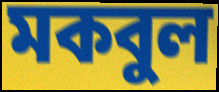
মকবুল